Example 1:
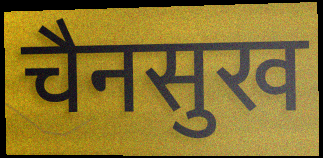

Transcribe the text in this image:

चैनसुख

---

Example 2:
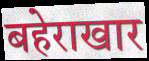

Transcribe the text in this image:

बहेराखार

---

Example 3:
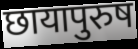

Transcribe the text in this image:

छायापुरुष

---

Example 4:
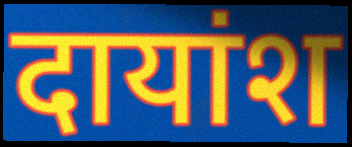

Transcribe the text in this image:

दायांश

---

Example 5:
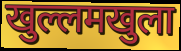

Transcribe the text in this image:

खुल्लमखुला